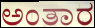
ಅಂತಾರ